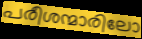
പരീശന്മാരിലോ